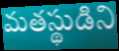
మతస్థుడిని